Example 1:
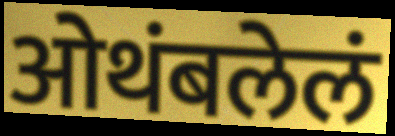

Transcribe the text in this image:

ओथंबलेलं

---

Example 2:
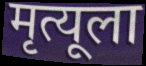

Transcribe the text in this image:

मृत्यूला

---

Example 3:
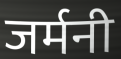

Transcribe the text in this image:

जर्मनी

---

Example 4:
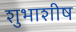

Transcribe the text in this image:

शुभाशीष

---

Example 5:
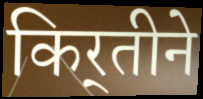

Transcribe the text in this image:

किर्तीने